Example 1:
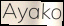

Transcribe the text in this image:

Ayako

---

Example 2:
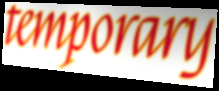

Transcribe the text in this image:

temporary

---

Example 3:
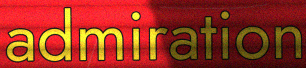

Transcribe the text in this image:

admiration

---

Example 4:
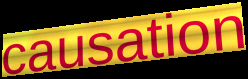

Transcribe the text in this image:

causation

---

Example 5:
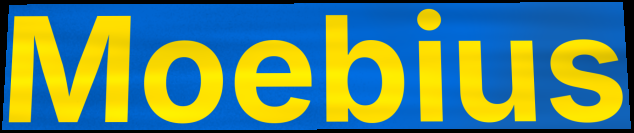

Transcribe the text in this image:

Moebius